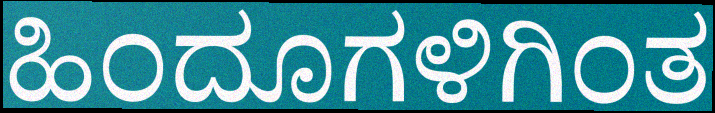
ಹಿಂದೂಗಳಿಗಿಂತ